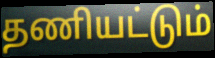
தணியட்டும்